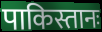
पाकिस्तानः